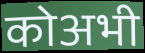
कोअभी